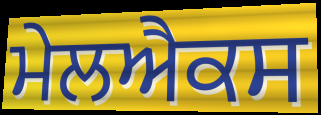
ਮੇਲਐਕਸ